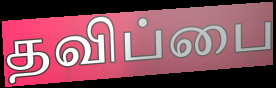
தவிப்பை